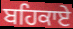
ਬਹਿਕਾਏ